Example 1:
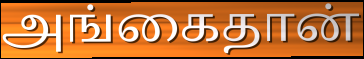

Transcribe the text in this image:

அங்கைதான்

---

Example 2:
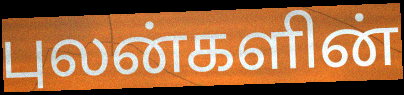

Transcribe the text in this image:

புலன்களின்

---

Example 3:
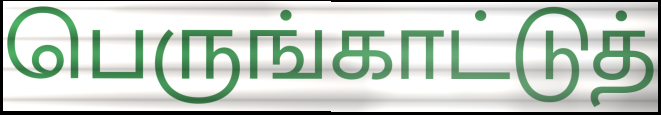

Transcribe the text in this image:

பெருங்காட்டுத்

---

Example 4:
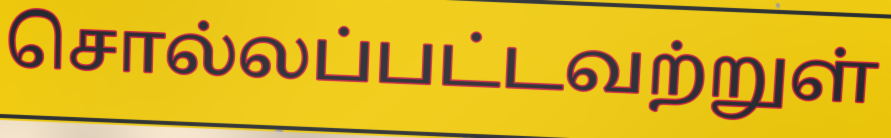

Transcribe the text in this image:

சொல்லப்பட்டவற்றுள்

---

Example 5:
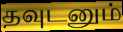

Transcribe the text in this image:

தவுடனும்